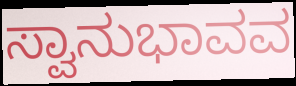
ಸ್ವಾನುಭಾವವ